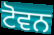
ਟੋਵਨ